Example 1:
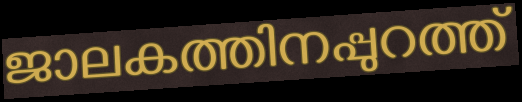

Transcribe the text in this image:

ജാലകത്തിനപ്പുറത്ത്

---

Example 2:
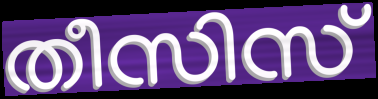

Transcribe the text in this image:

തീസിസ്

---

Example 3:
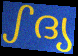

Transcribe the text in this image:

ഽദ്യ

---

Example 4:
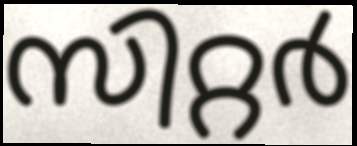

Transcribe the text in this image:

സിറ്റർ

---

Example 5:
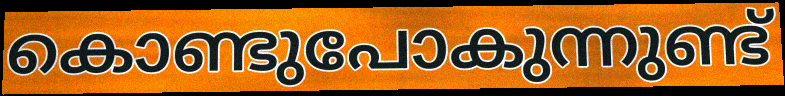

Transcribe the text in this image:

കൊണ്ടുപോകുന്നുണ്ട്